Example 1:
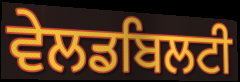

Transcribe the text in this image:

ਵੇਲਡਬਿਲਟੀ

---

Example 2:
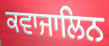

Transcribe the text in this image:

ਕਵਾਜਾਲਿਨ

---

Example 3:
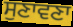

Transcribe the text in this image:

ਸੁਣਾਵਣਾ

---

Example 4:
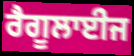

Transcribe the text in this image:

ਰੈਗੂਲਾਈਜ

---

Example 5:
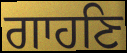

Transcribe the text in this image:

ਗਾਹਣਿ